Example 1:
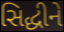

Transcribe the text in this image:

સિદ્ધીને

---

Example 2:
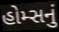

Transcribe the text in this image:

હોમ્સનું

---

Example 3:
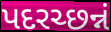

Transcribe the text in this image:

પદરચ્છન્નં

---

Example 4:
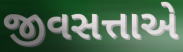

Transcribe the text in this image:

જીવસત્તાએ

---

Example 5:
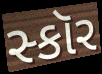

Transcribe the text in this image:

સ્કૉર